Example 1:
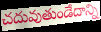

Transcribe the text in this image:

చదువుతుండేదాన్ని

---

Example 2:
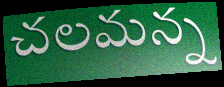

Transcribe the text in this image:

చలమన్న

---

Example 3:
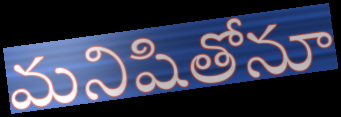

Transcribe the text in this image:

మనిషితోనూ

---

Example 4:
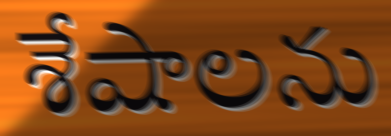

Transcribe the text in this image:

శేషాలను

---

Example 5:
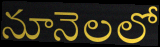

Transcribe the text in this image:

నూనెలలో